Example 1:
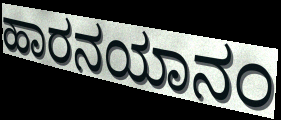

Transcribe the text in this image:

ಹಾರನಯಾನಂ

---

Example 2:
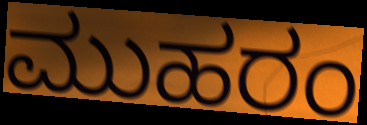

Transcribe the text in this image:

ಮುಹರಂ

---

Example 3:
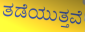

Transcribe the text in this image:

ತಡೆಯುತ್ತವೆ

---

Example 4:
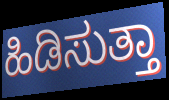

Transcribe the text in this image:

ಹಿಡಿಸುತ್ತಾ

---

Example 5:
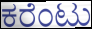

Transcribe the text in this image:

ಕರೆಂಟು